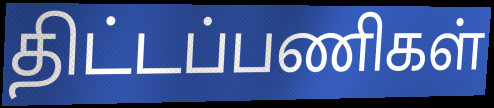
திட்டப்பணிகள்